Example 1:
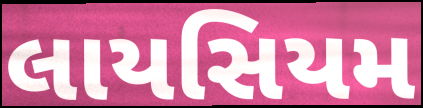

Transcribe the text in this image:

લાયસિયમ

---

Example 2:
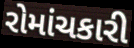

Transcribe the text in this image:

રોમાંચકારી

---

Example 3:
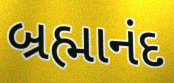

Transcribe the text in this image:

બ્રહ્માનંદ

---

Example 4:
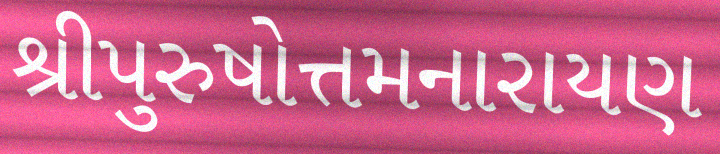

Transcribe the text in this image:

શ્રીપુરુષોત્તમનારાયણ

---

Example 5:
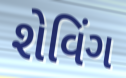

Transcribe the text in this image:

શેવિંગ